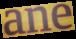
ane